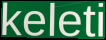
keleti